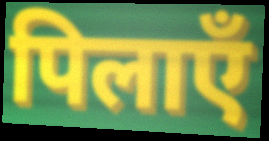
पिलाएँ